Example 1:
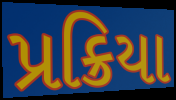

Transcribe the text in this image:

પ્રક્રિયા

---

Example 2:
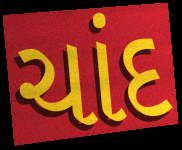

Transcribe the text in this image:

ચાંદ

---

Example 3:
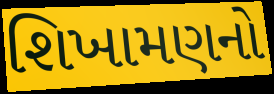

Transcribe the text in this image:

શિખામણનો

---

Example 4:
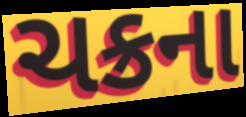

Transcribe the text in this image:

ચક્રના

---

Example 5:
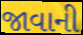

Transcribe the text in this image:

જાવાની